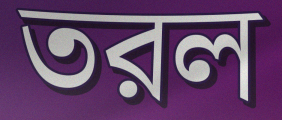
তরল